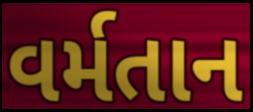
વર્મતાન